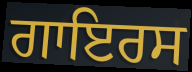
ਗਾਇਰਸ